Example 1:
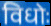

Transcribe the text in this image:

विधोः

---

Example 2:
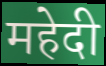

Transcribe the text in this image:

महेदी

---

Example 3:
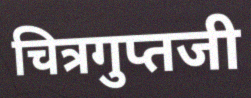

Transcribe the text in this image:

चित्रगुप्तजी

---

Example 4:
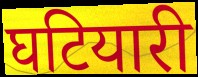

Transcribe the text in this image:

घटियारी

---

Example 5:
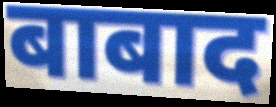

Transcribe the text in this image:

बाबाद